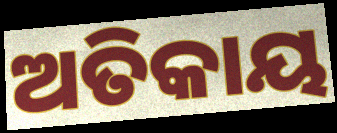
ଅତିକାୟ